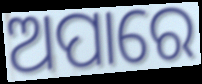
ଅପାରେ